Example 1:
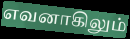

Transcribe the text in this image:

எவனாகிலும்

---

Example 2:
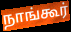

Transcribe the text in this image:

நாங்கூர்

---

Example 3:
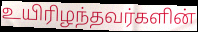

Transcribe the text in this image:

உயிரிழந்தவர்களின்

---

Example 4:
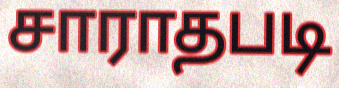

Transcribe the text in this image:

சாராதபடி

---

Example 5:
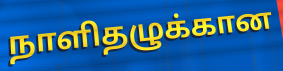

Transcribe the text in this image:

நாளிதழுக்கான